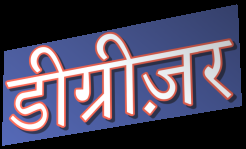
डीग्रीज़र